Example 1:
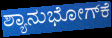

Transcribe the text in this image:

ಶ್ಯಾನುಭೋಗ್‌ಕೆ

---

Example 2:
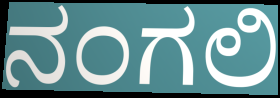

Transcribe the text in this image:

ನಂಗಲಿ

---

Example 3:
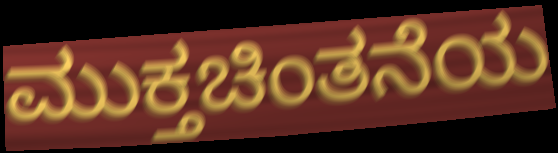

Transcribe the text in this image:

ಮುಕ್ತಚಿಂತನೆಯ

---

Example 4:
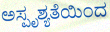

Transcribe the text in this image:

ಅಸ್ಪೃಶ್ಯತೆಯಿಂದ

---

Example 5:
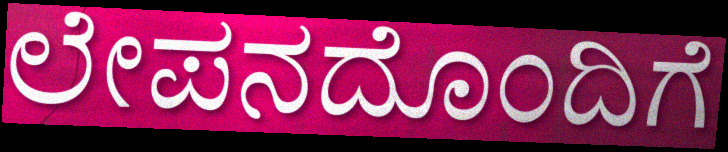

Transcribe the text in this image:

ಲೇಪನದೊಂದಿಗೆ